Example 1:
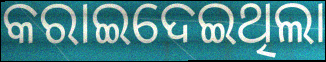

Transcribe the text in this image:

କରାଇଦେଇଥିଲା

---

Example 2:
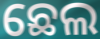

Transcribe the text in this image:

ଛେଲ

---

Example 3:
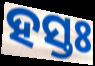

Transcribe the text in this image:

ହସ୍ତଃ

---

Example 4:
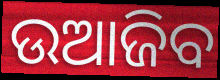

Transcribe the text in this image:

ଉଆଜିବ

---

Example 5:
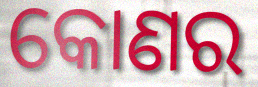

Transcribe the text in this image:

କୋଣର